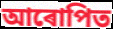
আৰোপিত